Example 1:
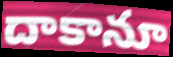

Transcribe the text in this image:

దాకానూ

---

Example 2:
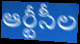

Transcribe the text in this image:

ఆర్టీసీల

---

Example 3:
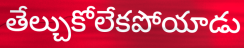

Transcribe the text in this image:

తేల్చుకోలేకపోయాడు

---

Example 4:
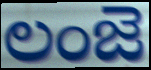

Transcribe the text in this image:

లంజె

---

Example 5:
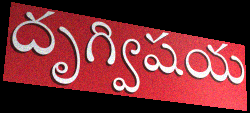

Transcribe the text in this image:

దృగ్విషయ